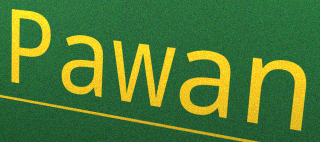
Pawan